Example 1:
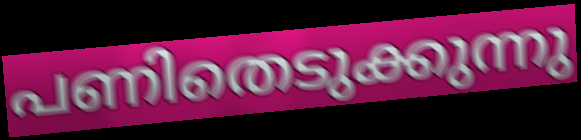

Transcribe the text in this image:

പണിതെടുക്കുന്നു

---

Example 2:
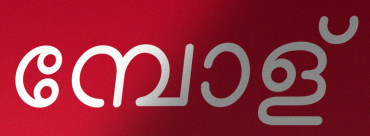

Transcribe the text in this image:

മ്പോള്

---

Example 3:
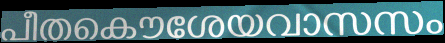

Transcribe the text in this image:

പീതകൌശേയവാസസം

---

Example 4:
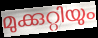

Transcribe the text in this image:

മുക്കുറ്റിയും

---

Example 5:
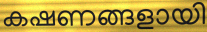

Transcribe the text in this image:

കഷണങ്ങളായി